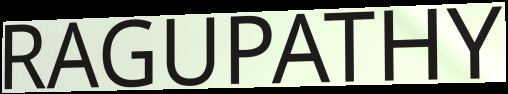
RAGUPATHY